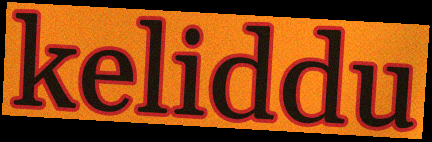
keliddu